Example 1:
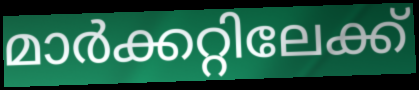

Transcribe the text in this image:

മാർക്കറ്റിലേക്ക്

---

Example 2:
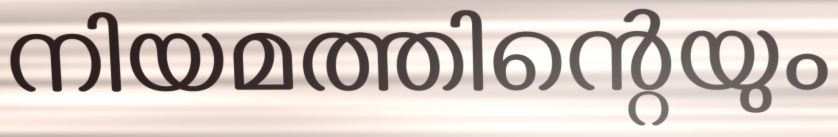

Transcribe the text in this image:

നിയമത്തിന്റെയും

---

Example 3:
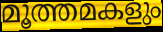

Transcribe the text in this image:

മൂത്തമകളും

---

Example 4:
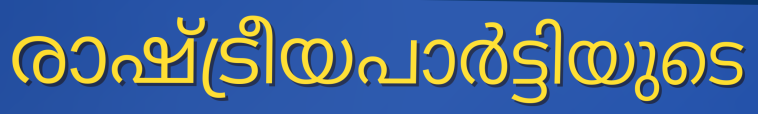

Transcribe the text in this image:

രാഷ്ട്രീയപാർട്ടിയുടെ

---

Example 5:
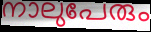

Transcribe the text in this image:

നാലുപേരും